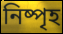
নিষ্পৃহ